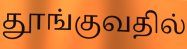
தூங்குவதில்